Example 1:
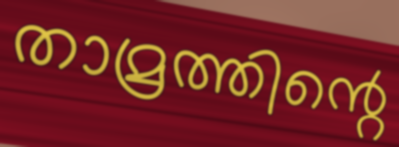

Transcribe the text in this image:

താമ്രത്തിന്റെ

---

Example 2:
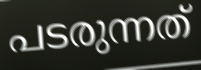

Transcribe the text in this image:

പടരുന്നത്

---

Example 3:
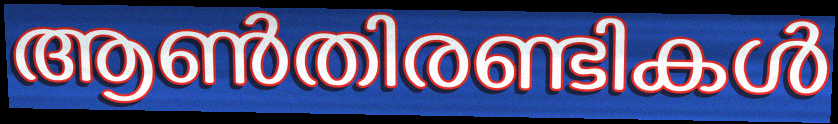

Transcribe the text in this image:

ആൺതിരണ്ടികൾ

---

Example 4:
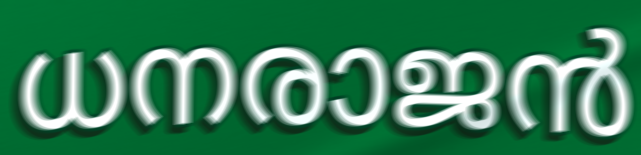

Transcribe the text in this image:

ധനരാജൻ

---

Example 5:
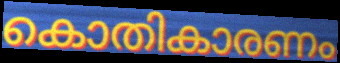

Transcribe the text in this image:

കൊതികാരണം